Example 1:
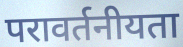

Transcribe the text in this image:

परावर्तनीयता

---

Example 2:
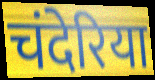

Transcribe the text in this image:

चंदेरिया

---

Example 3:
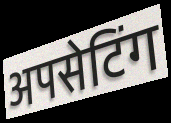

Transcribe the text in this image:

अपसेटिंग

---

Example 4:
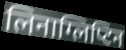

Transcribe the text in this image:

लिनाग्लिप्टिन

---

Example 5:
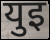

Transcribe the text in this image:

युइ